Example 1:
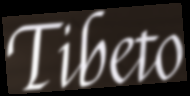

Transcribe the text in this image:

Tibeto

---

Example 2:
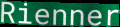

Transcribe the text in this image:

Rienner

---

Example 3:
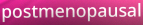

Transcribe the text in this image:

postmenopausal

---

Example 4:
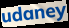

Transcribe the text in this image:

udaney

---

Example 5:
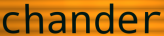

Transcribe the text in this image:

chander